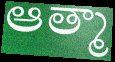
ఆత్మా